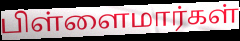
பிள்ளைமார்கள்